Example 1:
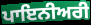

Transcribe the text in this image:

ਪਾਇਨੀਅਰੀ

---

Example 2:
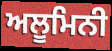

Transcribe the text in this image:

ਅਲੂਮਿਨੀ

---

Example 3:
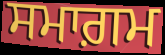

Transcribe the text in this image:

ਸਮਾਗ਼ਮ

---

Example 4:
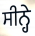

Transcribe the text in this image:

ਸੀਨ੍ਹੇ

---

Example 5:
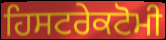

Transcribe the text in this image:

ਹਿਸਟਰੇਕਟੋਮੀ